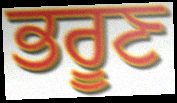
ਭਰੂਣ